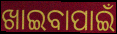
ଖାଇବାପାଇଁ